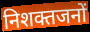
निशक्तजनों